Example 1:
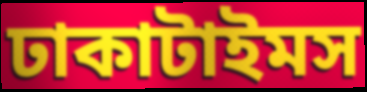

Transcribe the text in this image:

ঢাকাটাইমস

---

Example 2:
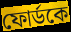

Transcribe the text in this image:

ফোর্ডকে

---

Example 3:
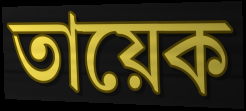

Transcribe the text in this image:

তায়েক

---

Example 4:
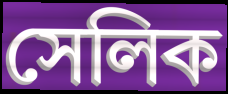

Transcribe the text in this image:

সেলিক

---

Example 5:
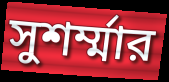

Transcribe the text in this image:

সুশর্ম্মার